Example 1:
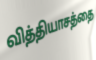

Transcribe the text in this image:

வித்தியாசத்தை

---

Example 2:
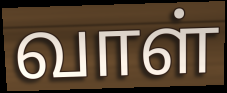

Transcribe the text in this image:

வாள்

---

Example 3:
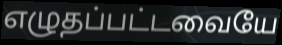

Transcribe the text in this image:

எழுதப்பட்டவையே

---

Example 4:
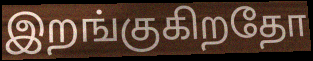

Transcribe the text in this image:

இறங்குகிறதோ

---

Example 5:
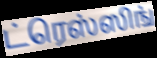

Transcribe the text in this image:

ட்ரெஸ்ஸிங்